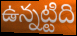
ఉన్నట్టిది